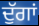
ਦੁੱਗਾਂ